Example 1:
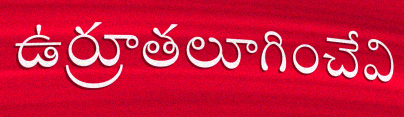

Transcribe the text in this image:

ఉర్రూతలూగించేవి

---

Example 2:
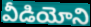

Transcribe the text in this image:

వీడియోని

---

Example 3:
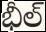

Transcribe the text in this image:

భీల్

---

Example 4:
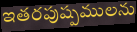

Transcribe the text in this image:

ఇతరపుష్పములను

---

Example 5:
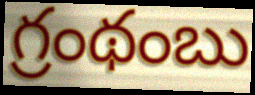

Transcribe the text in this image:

గ్రంథంబు